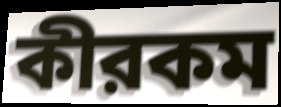
কীরকম